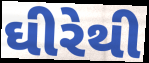
ઘીરેથી